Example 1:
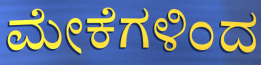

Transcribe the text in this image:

ಮೇಕೆಗಳಿಂದ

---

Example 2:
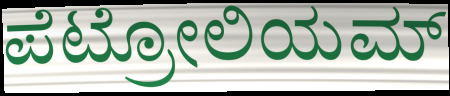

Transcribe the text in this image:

ಪೆಟ್ರೋಲಿಯಮ್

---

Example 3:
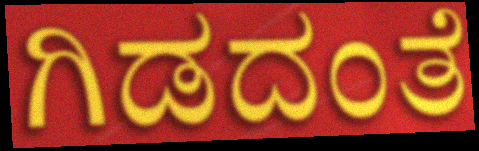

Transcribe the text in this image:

ಗಿಡದಂತೆ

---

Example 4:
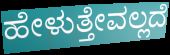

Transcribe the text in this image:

ಹೇಳುತ್ತೇವಲ್ಲದೆ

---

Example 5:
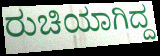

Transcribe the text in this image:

ರುಚಿಯಾಗಿದ್ದ